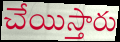
చేయిస్తారు